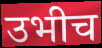
उभीच